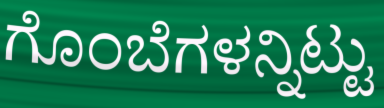
ಗೊಂಬೆಗಳನ್ನಿಟ್ಟು